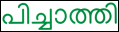
പിച്ചാത്തി